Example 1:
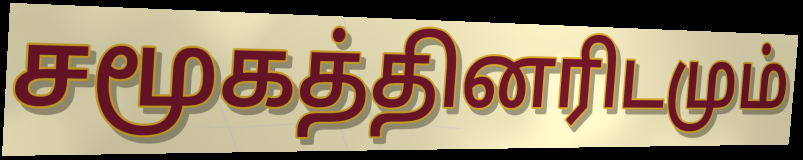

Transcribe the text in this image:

சமூகத்தினரிடமும்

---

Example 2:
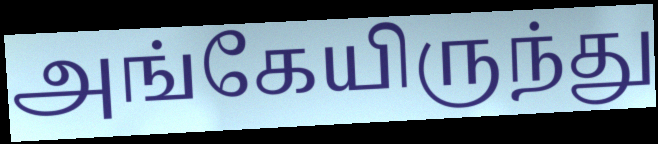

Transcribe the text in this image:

அங்கேயிருந்து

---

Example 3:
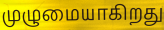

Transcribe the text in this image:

முழுமையாகிறது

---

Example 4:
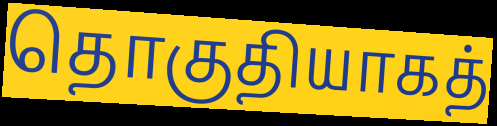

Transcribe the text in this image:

தொகுதியாகத்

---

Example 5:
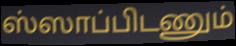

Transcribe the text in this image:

ஸ்ஸாப்பிடணும்